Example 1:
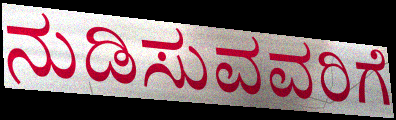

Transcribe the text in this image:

ನುಡಿಸುವವರಿಗೆ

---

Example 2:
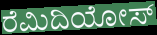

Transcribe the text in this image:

ರೆಮಿದಿಯೋಸ್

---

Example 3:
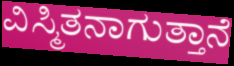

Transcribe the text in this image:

ವಿಸ್ಮಿತನಾಗುತ್ತಾನೆ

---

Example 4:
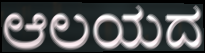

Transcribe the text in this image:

ಆಲಯದ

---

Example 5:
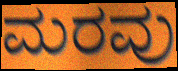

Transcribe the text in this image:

ಮರವು